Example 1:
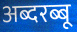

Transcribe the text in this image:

अब्दरब्बू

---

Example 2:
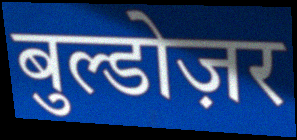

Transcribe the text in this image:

बुल्डोज़र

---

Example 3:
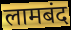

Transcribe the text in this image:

लामबंद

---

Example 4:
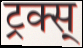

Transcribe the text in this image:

ट्रक्स्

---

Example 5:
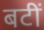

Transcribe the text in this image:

बटीं